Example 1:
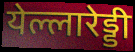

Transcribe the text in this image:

येल्लारेड्डी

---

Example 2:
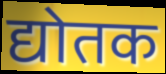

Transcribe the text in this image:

द्योतक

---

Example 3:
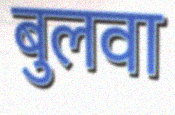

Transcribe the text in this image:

बुलवा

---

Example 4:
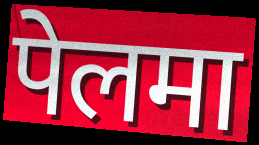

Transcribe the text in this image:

पेलमा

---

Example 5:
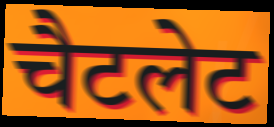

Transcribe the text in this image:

चैटलेट